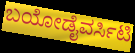
ಬಯೋಡೈವರ್ಸಿಟಿ